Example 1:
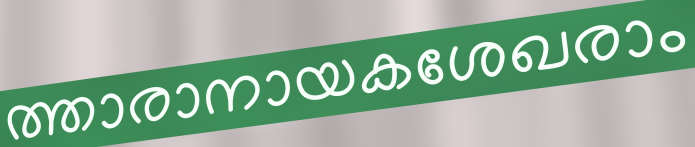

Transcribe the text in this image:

ത്താരാനായകശേഖരാം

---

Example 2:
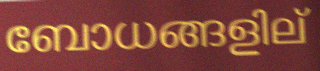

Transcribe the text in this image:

ബോധങ്ങളില്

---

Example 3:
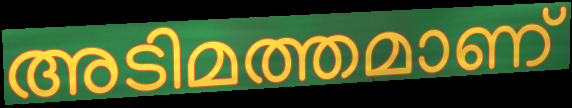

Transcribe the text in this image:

അടിമത്തമാണ്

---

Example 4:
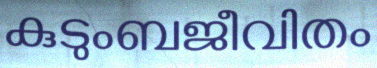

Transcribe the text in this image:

കുടുംബജീവിതം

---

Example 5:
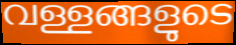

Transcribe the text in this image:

വള്ളങ്ങളുടെ